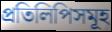
প্ৰতিলিপিসমূহ